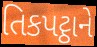
તિકપટ્ઠાને